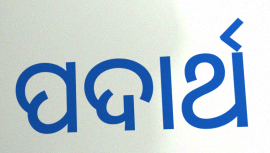
ପଦାର୍ଥ